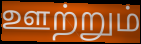
ஊற்றும்